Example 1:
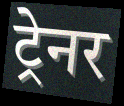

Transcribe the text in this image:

ट्रेनर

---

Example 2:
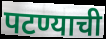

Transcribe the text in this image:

पटण्याची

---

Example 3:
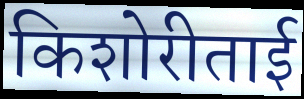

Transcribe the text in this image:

किशोरीताई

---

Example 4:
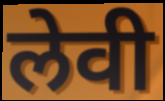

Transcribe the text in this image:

लेवी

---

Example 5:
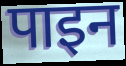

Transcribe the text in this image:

पाइन